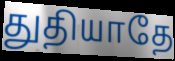
துதியாதே